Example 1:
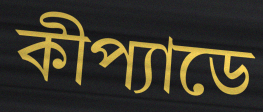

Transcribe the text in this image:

কীপ্যাডে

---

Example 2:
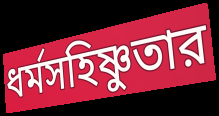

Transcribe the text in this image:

ধর্মসহিষ্ণুতার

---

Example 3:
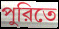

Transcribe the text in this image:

পুরিতে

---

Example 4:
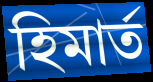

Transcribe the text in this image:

হিমার্ত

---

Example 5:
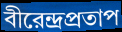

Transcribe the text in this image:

বীরেন্দ্রপ্রতাপ